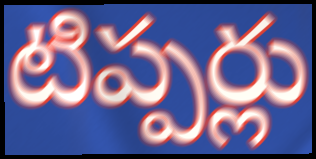
టిప్పర్లు